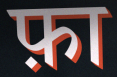
फ़ा